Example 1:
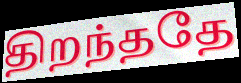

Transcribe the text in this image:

திறந்ததே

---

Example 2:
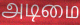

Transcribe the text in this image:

அடிமை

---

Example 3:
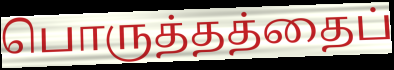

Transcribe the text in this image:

பொருத்தத்தைப்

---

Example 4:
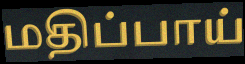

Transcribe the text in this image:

மதிப்பாய்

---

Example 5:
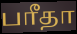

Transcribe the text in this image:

பரீதா